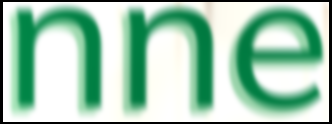
nne